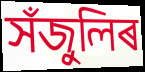
সঁজুলিৰ